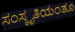
ಸಂಸ್ಕೃತಿಯಂತೂ